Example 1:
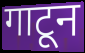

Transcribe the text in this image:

गाटून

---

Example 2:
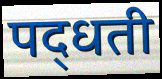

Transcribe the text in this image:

पद्धती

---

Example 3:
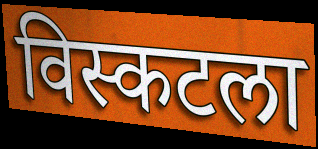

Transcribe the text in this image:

विस्कटला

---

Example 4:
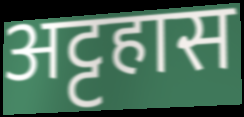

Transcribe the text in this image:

अट्टहास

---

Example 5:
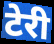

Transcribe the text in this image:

टेरी